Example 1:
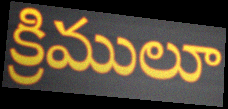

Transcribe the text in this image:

క్రిములూ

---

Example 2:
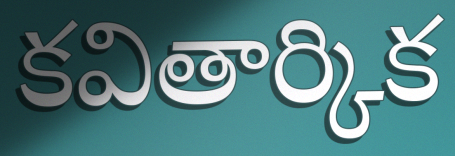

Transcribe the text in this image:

కవితార్కిక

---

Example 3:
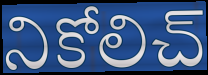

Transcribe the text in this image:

నికోలిచ్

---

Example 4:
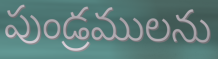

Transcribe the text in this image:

పుండ్రములను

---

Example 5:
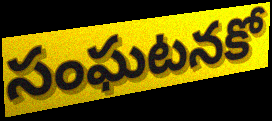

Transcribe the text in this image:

సంఘటనకో